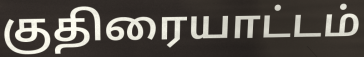
குதிரையாட்டம்